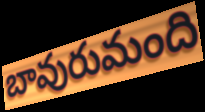
బావురుమంది